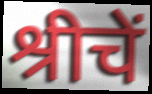
श्रीचें